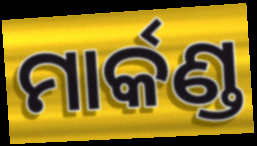
ମାର୍କଣ୍ଡ